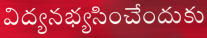
విద్యనభ్యసించేందుకు